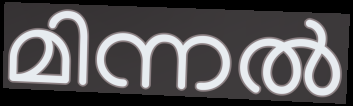
മിന്നൽ